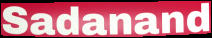
Sadanand